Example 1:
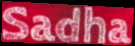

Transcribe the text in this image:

Sadha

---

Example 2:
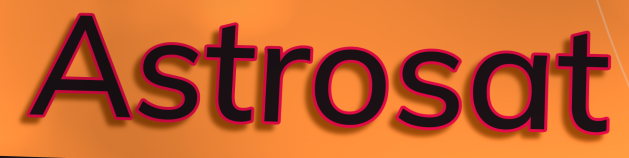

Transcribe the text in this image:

Astrosat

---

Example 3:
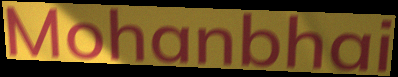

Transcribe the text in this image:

Mohanbhai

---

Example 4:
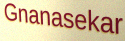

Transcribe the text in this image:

Gnanasekar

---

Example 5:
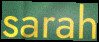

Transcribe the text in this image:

sarah